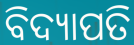
ବିଦ୍ୟାପତି